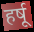
हर्षू